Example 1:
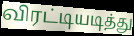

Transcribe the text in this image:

விரட்டியடித்து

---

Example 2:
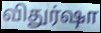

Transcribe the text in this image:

விதுர்ஷா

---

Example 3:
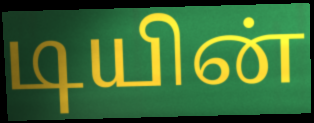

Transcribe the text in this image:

டியின்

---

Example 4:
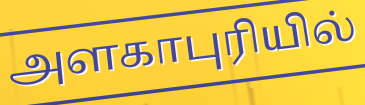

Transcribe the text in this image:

அளகாபுரியில்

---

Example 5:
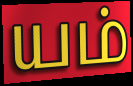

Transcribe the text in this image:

யம்